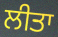
ਲੀਤਾ